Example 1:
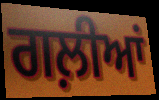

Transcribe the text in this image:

ਗਲ਼ੀਆਂ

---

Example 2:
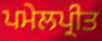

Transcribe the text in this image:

ਪਮੇਲਪ੍ਰੀਤ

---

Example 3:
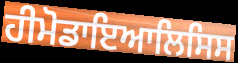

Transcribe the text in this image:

ਹੀਮੋਡਾਇਆਲਿਸਿਸ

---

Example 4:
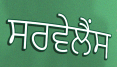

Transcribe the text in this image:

ਸਰਵੇਲੈਂਸ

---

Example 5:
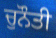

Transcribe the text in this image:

ਚੁਨੌਤੀ